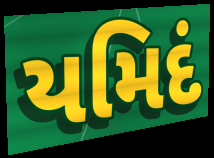
યમિદં